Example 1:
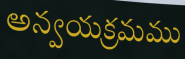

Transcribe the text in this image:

అన్వయక్రమము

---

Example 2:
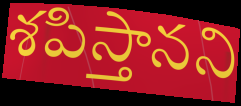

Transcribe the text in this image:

శపిస్తానని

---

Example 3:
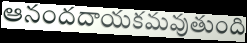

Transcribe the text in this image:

ఆనందదాయకమవుతుంది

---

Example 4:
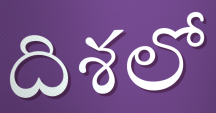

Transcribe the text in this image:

దిశలో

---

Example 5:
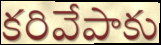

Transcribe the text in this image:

కరివేపాకు